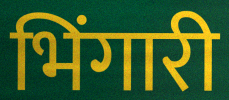
भिंगारी